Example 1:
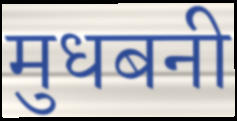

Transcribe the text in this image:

मुधबनी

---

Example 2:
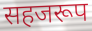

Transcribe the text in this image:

सहजरूप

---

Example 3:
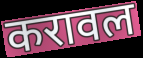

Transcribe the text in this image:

करावल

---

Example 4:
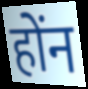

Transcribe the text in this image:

होंन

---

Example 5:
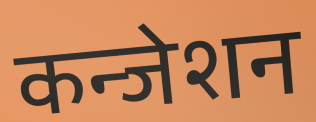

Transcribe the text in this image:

कन्जेशन